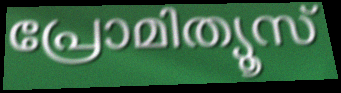
പ്രോമിത്യൂസ്